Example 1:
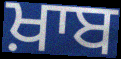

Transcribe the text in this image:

ਖ਼ਾਬ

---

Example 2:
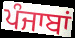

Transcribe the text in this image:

ਪੰਜਾਬਾਂ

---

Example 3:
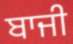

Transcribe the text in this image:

ਬਾਜੀ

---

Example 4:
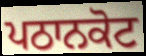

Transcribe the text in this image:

ਪਠਾਨਕੋਟ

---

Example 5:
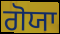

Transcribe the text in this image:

ਗੋਯਾ